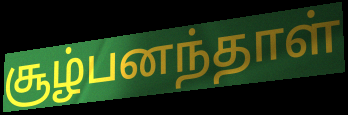
சூழ்பனந்தாள்